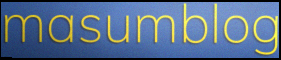
masumblog